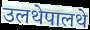
उलथेपालथे